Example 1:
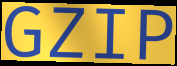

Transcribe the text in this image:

GZIP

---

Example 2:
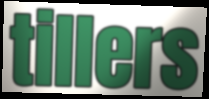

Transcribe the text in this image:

tillers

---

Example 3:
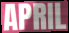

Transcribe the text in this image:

APRIL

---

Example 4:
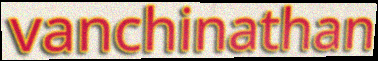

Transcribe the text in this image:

vanchinathan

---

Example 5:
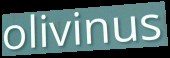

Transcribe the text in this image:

olivinus